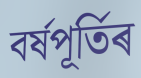
বৰ্ষপূৰ্তিৰ